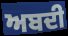
ਅਬਦੀ